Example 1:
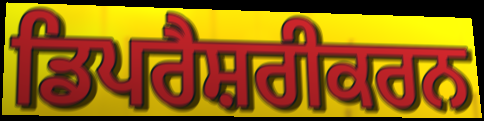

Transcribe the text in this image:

ਡਿਪਰੈਸ਼ਰੀਕਰਨ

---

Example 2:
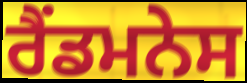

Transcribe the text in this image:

ਰੈਂਡਮਨੇਸ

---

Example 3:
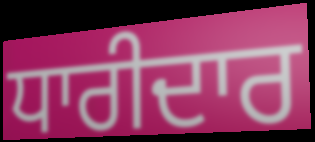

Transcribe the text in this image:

ਧਾਰੀਦਾਰ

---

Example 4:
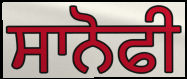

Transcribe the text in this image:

ਸਾਨੋਫੀ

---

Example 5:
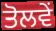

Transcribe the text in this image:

ਤੋਲਵੇਂ